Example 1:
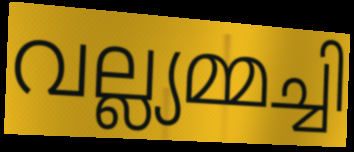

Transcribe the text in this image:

വല്ല്യമ്മച്ചി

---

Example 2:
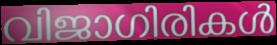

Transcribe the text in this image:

വിജാഗിരികൾ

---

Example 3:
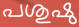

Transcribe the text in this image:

പശുഷു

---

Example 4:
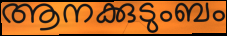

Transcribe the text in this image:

ആനക്കുടുംബം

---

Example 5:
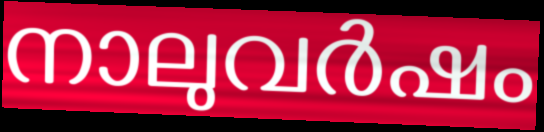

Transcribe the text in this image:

നാലുവർഷം